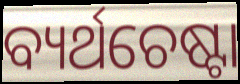
ବ୍ୟର୍ଥଚେଷ୍ଟା